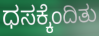
ಧಸಕ್ಕೆಂದಿತು